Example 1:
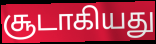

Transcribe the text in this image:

சூடாகியது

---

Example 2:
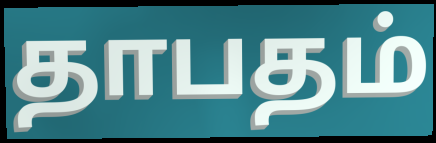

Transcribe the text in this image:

தாபதம்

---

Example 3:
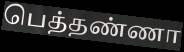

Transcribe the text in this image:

பெத்தண்ணா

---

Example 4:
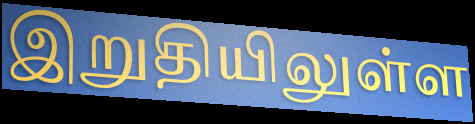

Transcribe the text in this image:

இறுதியிலுள்ள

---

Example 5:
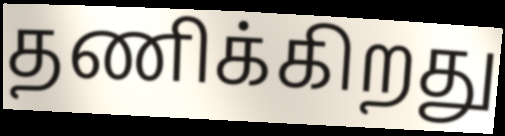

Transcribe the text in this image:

தணிக்கிறது